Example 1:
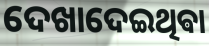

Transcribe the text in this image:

ଦେଖାଦେଇଥିଵା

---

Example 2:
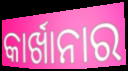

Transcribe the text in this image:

କାର୍ଖାନାର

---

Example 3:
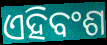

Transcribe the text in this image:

ଏହିବଂଶ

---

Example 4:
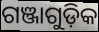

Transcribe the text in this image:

ଗଞ୍ଜାଗୁଡ଼ିକ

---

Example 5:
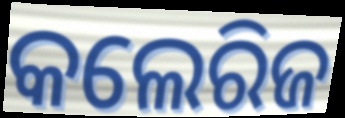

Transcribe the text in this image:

କଲେରିଜ